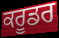
ਕਰੂਡਰ